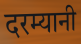
दरम्यानी